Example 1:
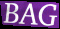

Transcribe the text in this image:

BAG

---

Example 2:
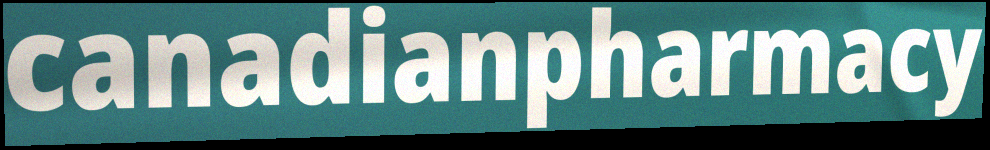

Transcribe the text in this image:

canadianpharmacy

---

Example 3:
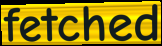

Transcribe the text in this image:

fetched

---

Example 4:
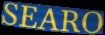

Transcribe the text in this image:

SEARO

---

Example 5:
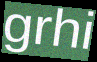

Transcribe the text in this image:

grhi